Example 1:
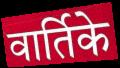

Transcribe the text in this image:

वार्तिके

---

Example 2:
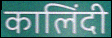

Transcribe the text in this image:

कालिंदी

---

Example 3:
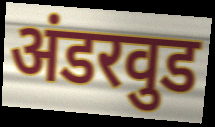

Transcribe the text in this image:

अंडरवुड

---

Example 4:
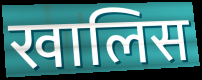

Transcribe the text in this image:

खालिस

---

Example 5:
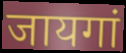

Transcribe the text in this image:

जायगां